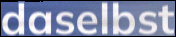
daselbst